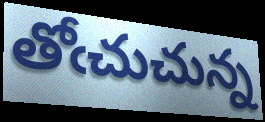
తోఁచుచున్న